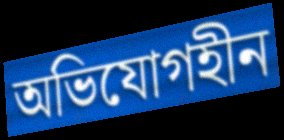
অভিযোগহীন